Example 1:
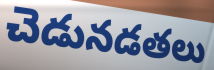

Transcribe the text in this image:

చెడునడతలు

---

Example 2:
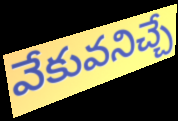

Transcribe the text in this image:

వేకువనిచ్చే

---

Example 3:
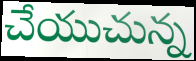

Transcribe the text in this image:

చేయుచున్న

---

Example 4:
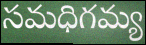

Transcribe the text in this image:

సమధిగమ్య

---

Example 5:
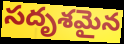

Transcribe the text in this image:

సదృశమైన